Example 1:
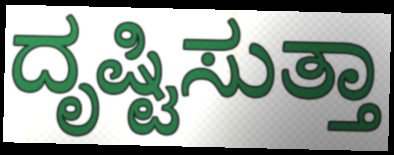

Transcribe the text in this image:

ದೃಷ್ಟಿಸುತ್ತಾ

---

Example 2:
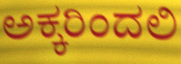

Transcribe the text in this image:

ಅಕ್ಕರಿಂದಲಿ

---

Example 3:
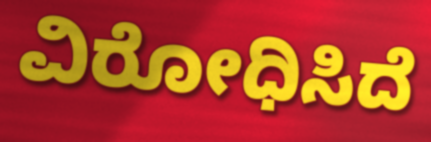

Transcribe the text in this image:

ವಿರೋಧಿಸಿದೆ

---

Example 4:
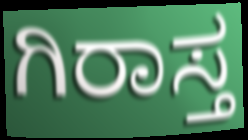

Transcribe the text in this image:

ಗಿರಾಸ್ತ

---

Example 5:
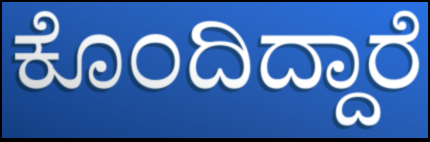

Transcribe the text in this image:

ಕೊಂದಿದ್ದಾರೆ